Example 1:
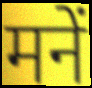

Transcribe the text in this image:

मनें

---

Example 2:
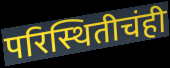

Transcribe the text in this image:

परिस्थितीचंही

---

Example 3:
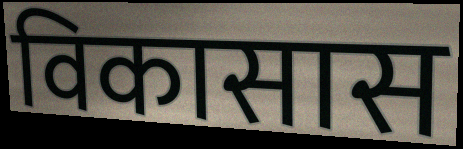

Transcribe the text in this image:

विकासास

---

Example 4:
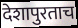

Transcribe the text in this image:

देशापुरताच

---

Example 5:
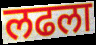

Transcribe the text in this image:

लढला